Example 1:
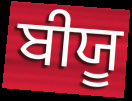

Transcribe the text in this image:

ਬੀਯੂ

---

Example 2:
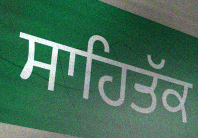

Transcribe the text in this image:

ਸਾਹਿਤੱਕ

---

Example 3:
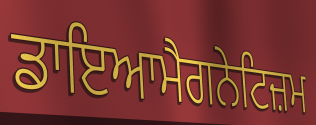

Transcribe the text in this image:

ਡਾਇਆਮੈਗਨੇਟਿਜ਼ਮ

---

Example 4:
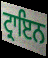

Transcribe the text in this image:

ਟ੍ਰਾਇਨ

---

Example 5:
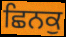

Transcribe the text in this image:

ਛਿਨਕੁ